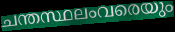
ചന്തസ്ഥലംവരെയും